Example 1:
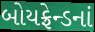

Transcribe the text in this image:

બોયફ્રેન્ડનાં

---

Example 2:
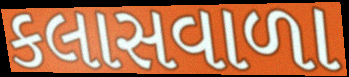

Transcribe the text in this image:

કલાસવાળા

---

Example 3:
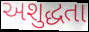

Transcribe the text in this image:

અશુદ્ધતા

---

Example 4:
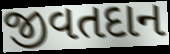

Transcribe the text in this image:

જીવતદાન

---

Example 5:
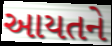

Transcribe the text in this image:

આયતને